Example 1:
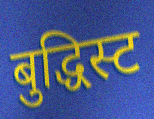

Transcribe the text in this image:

बुद्धिस्ट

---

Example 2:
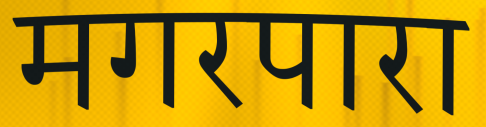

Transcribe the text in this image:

मगरपारा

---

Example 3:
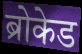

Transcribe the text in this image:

ब्रोकेड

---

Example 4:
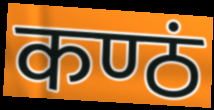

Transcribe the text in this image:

कण्ठं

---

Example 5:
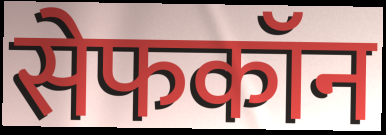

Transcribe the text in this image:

सेफकॉन